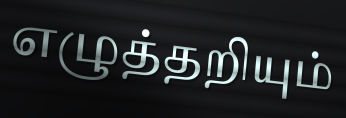
எழுத்தறியும்